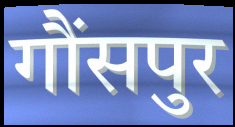
गौंसपुर